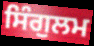
ਸਿੰਗੁਲਮ